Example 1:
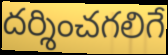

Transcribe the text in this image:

దర్శించగలిగే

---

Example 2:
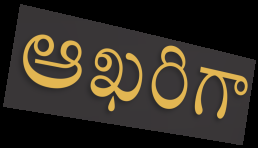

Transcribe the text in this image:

ఆఖరిగా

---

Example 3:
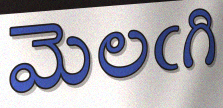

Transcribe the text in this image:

మెలఁగి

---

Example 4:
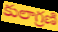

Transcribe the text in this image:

కులాగ్రణి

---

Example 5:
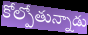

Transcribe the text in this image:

కోల్పోతున్నాడు